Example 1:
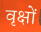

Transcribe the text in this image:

वृक्षों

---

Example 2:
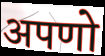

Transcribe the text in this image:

अपणो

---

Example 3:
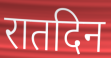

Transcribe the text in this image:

रातदिन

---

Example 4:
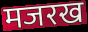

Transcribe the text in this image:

मजरख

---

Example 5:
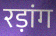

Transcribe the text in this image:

रड़ांग